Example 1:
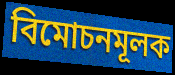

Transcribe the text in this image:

বিমোচনমূলক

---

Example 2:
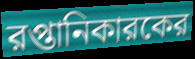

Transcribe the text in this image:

রপ্তানিকারকের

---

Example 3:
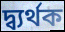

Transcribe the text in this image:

দ্ব্যর্থক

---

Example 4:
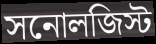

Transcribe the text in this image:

সনোলজিস্ট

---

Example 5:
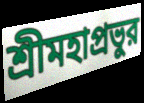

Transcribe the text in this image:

শ্রীমহাপ্রভুর